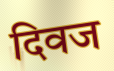
दिवज